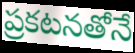
ప్రకటనతోనే